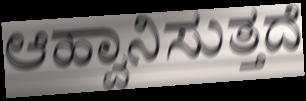
ಆಹ್ವಾನಿಸುತ್ತದೆ